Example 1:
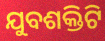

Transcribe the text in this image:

ଯୁବଶକ୍ତିଟି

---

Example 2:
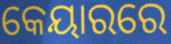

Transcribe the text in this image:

କେୟାରରେ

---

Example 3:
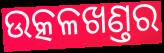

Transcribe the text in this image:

ଉତ୍କଳଖଣ୍ତର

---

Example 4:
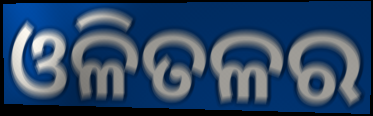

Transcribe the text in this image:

ଓଳିତଳର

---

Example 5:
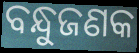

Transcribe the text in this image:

ବନ୍ଧୁଜଣକ